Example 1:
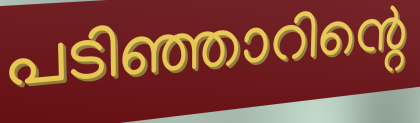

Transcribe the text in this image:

പടിഞ്ഞാറിന്റെ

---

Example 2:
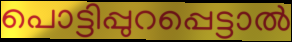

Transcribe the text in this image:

പൊട്ടിപ്പുറപ്പെട്ടാൽ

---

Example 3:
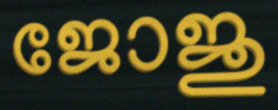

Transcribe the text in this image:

ജോജു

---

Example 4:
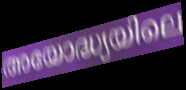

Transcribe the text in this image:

അയോദ്ധ്യയിലെ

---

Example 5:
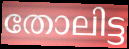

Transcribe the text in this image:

തോലിട്ട